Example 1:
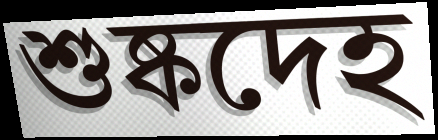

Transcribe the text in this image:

শুষ্কদেহ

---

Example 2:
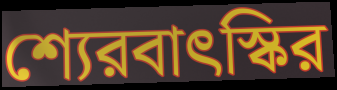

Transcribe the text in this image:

শ্যেরবাৎস্কির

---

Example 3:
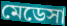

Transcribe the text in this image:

মেডেসা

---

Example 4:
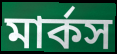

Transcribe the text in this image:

মার্কস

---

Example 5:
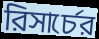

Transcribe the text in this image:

রিসার্চের